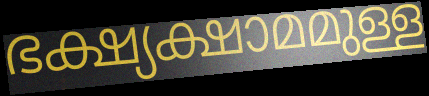
ഭക്ഷ്യക്ഷാമമുള്ള